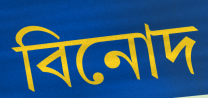
বিনোদ